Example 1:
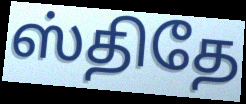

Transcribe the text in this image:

ஸ்திதே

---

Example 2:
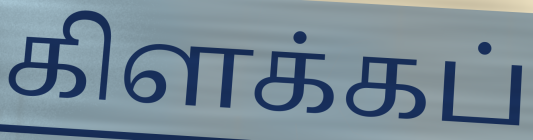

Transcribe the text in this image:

கிளக்கப்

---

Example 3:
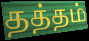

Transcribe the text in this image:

தத்தம்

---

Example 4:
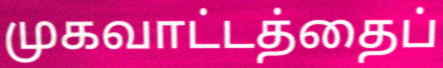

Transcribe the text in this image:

முகவாட்டத்தைப்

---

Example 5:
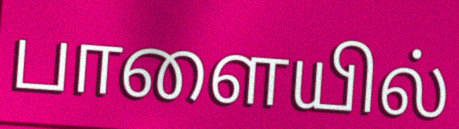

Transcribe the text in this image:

பாளையில்